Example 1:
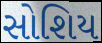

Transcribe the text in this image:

સોશિય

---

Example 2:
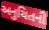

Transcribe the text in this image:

અનુચિતની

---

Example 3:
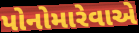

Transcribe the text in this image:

પોનોમારેવાએ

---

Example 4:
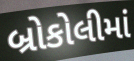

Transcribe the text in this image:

બ્રોકોલીમાં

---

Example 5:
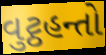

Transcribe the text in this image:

વુટ્ઠહન્તો